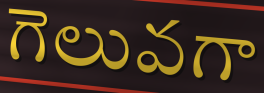
గెలువగా